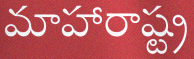
మాహారాష్ట్ర